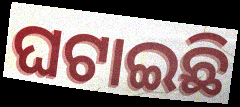
ଘଟାଇଛି